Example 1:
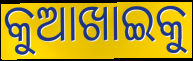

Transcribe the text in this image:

କୁଆଖାଇକୁ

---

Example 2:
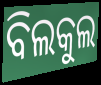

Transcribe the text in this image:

ବିଲକୁଲ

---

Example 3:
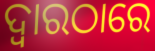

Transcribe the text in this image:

ଦ୍ୱାରଠାରେ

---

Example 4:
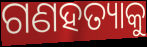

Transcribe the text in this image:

ଗଣହତ୍ୟାକୁ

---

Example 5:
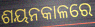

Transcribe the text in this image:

ଶୟନକାଳରେ